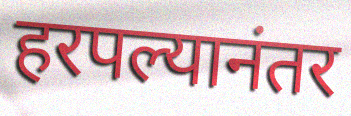
हरपल्यानंतर